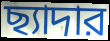
ছ্যাদার